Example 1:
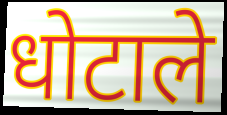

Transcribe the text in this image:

धोटाले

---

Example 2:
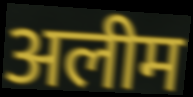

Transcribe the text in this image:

अलीम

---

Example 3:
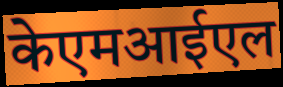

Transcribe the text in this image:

केएमआईएल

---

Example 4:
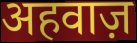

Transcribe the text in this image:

अहवाज़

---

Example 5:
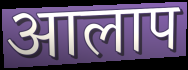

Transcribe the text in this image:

आलाप